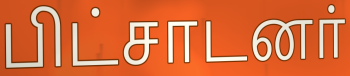
பிட்சாடனர்